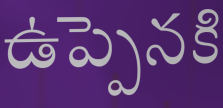
ఉప్పెనకి